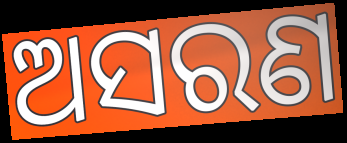
ଅସରଣ